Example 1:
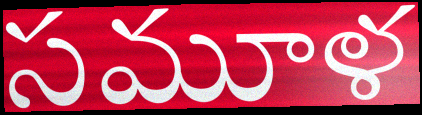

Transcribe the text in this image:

సమూళ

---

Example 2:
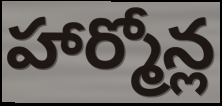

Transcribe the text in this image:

హార్మోన్ల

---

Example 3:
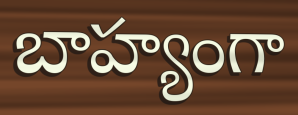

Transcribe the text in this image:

బాహ్యంగా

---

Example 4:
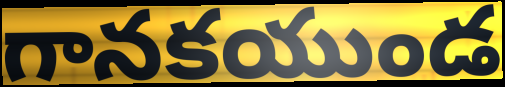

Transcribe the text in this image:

గానకయుండ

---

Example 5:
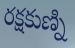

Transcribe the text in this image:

రక్షకుణ్ని